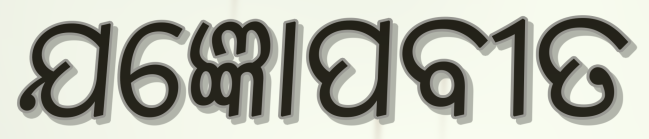
ଯଜ୍ଞୋପବୀତ